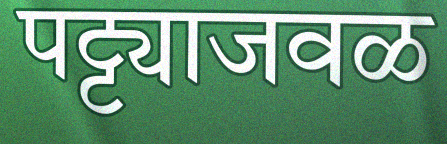
पट्ट्याजवळ